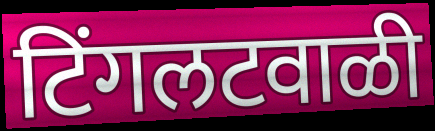
टिंगलटवाळी